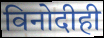
विनोदीही